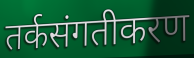
तर्कसंगतीकरण